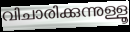
വിചാരിക്കുന്നുള്ളൂ